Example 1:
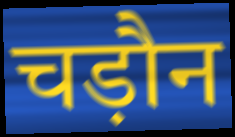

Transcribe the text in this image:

चड़ौन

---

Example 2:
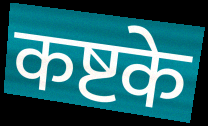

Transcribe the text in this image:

कष्टके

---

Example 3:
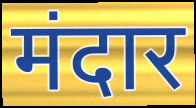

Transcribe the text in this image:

मंदार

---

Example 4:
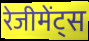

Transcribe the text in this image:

रेजीमेंट्स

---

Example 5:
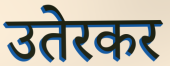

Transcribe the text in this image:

उतेरकर